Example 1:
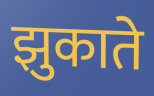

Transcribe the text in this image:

झुकाते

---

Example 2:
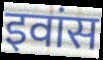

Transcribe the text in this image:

इवांस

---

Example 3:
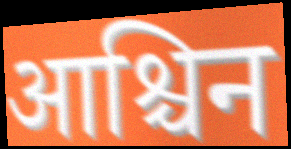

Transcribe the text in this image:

आश्चिन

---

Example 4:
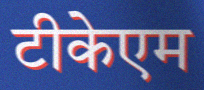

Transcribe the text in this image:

टीकेएम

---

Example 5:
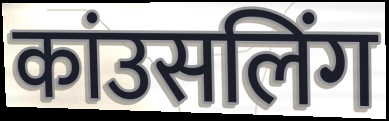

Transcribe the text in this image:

कांउसलिंग